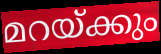
മറയ്ക്കും